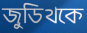
জুডিথকে